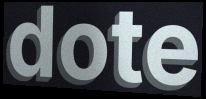
dote